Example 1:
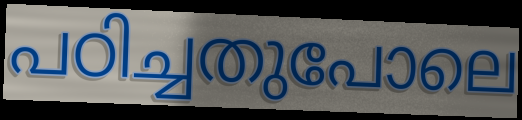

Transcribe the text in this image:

പഠിച്ചതുപോലെ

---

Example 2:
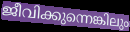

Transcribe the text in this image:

ജീവിക്കുന്നെങ്കിലും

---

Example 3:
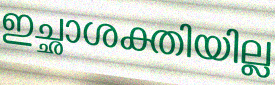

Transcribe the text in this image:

ഇച്ഛാശക്തിയില്ല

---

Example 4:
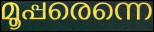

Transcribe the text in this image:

മൂപ്പരെന്നെ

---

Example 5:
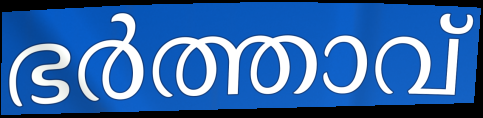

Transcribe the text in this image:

ഭർത്താവ്